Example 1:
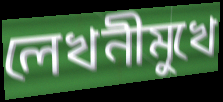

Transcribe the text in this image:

লেখনীমুখে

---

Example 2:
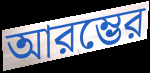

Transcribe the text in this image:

আরম্ভের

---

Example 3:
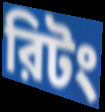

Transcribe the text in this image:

রিটং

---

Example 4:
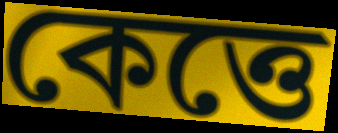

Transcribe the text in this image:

কেত্তে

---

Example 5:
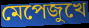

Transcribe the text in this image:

মেপেজুখে